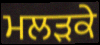
ਮਲੜਕੇ